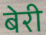
बेरी